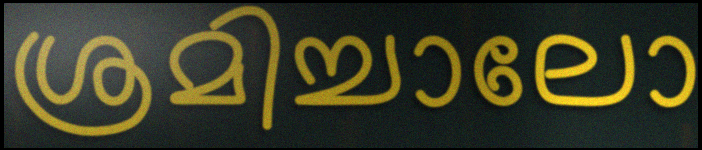
ശ്രമിച്ചാലോ